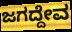
ಜಗದ್ದೇವ